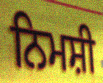
ਨਿਮਸ਼ੀ